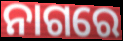
ନାଗରେ